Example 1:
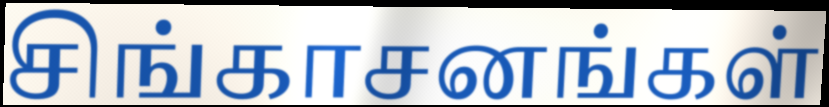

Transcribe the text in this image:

சிங்காசனங்கள்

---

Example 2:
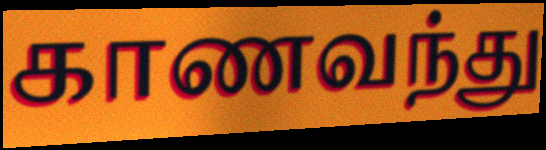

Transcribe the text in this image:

காணவந்து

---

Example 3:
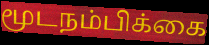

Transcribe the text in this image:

மூடநம்பிக்கை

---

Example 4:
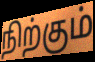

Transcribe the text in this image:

நிற்கும்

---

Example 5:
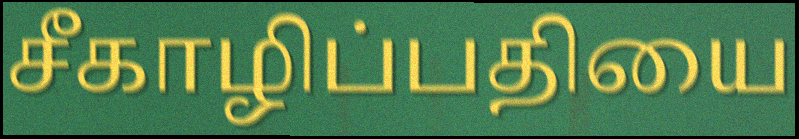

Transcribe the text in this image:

சீகாழிப்பதியை